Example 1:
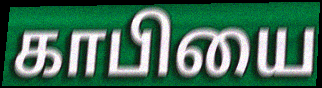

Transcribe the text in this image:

காபியை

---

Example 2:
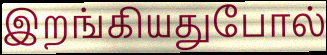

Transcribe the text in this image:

இறங்கியதுபோல்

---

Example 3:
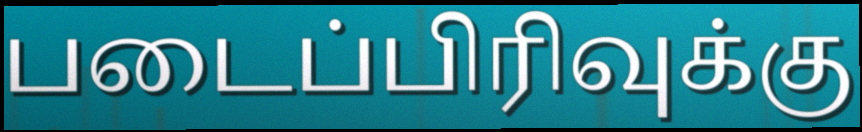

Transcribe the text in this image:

படைப்பிரிவுக்கு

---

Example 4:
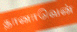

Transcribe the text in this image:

தானாவென்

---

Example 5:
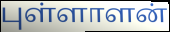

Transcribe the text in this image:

புள்ளாளன்